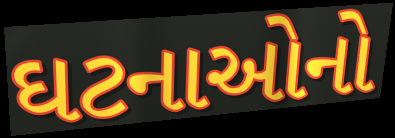
ઘટનાઓનો